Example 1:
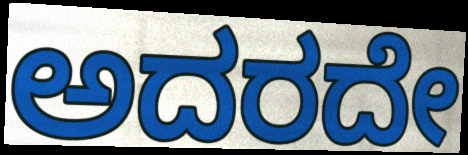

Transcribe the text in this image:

ಅದರದೇ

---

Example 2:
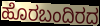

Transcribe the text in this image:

ಹೊರಬಂದಿರದ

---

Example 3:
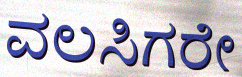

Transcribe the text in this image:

ವಲಸಿಗರೇ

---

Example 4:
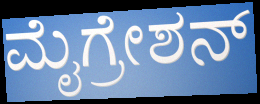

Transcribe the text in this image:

ಮೈಗ್ರೇಶನ್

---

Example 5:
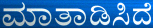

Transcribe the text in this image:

ಮಾತಾಡಿಸಿದೆ